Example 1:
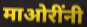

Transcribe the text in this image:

माओरींनी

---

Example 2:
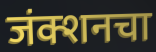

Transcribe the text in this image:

जंक्शनचा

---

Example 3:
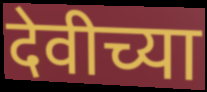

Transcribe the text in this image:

देवीच्या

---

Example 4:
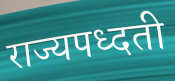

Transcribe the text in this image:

राज्यपध्दती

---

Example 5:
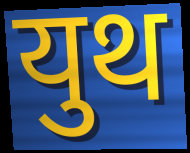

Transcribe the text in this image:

युथ